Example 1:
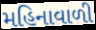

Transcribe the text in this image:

મહિનાવાળી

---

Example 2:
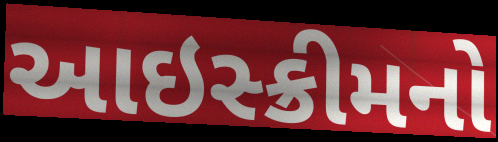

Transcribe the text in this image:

આઇસ્ક્રીમનો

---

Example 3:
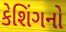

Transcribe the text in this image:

કેશિંગનો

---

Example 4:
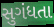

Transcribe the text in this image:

સુગંધતા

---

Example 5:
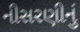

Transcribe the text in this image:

નીસરણીનું